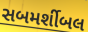
સબમર્શીબલ